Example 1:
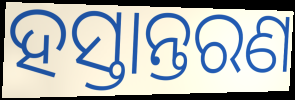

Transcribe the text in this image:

ହସ୍ତାନ୍ତରଣ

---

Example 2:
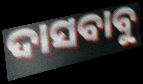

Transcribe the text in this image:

ଦାସବାବୁ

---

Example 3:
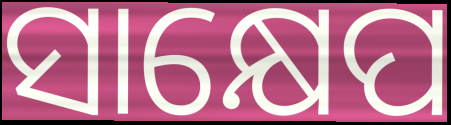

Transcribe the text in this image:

ସାକ୍ଷେପ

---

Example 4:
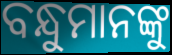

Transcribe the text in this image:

ବନ୍ଧୁମାନଙ୍କୁ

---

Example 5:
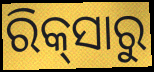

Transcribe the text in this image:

ରିକ୍‌ସାରୁ